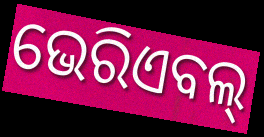
ଭେରିଏବଲ୍